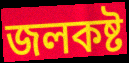
জলকষ্ট